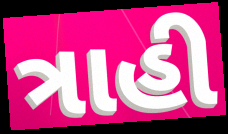
ત્રાહી